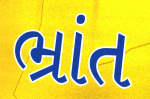
ભ્રાંત